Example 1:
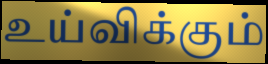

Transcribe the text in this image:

உய்விக்கும்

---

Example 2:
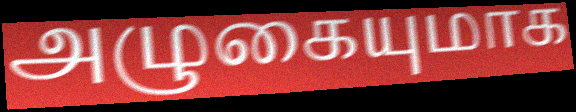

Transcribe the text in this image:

அழுகையுமாக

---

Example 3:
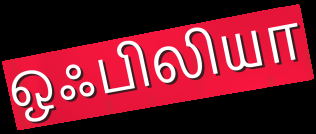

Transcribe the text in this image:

ஒஃபிலியா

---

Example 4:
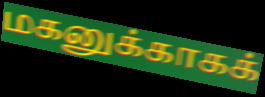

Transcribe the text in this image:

மகனுக்காகக்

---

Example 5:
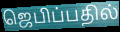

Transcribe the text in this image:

ஜெபிப்பதில்